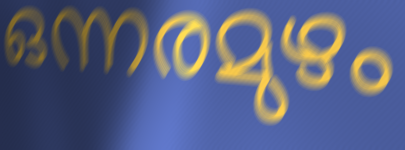
ഒന്നരമുഴം